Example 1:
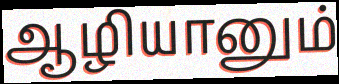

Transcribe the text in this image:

ஆழியானும்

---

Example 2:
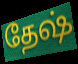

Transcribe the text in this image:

தேஷ்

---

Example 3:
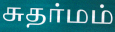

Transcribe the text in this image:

சுதர்மம்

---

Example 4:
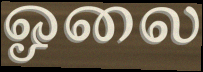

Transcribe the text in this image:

ஓலை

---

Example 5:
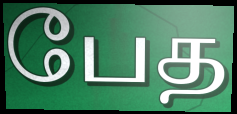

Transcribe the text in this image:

பேத